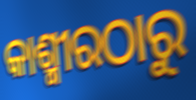
କାଶ୍ମୀରଠାରୁ